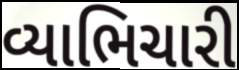
વ્યાભિચારી